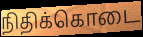
நிதிக்கொடை